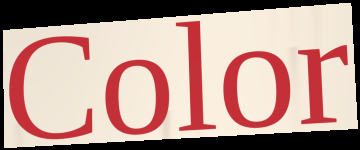
Color